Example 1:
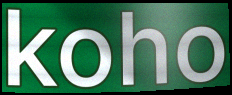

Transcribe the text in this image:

koho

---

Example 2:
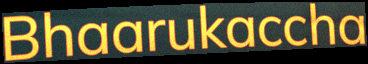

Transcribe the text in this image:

Bhaarukaccha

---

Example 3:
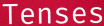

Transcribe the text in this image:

Tenses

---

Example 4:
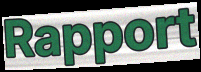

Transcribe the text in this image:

Rapport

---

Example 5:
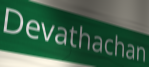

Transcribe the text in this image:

Devathachan